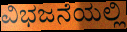
ವಿಭಜನೆಯಲ್ಲಿ